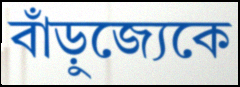
বাঁড়ুজ্যেকে